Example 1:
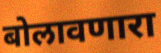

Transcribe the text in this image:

बोलावणारा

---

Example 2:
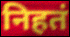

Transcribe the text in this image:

निहतं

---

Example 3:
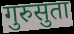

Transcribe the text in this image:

गुरुसुता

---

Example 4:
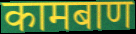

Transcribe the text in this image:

कामबाण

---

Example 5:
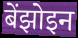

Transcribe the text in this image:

बेंझोइन